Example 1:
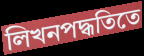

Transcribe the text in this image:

লিখনপদ্ধতিতে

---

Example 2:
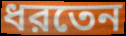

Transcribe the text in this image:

ধরতেন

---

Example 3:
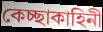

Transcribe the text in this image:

কেচ্ছাকাহিনী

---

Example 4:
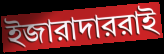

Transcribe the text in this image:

ইজারাদাররাই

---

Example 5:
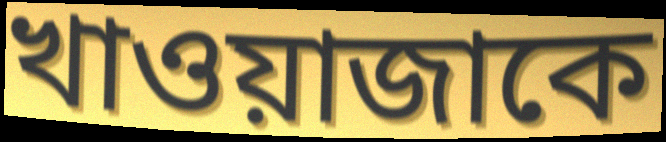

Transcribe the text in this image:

খাওয়াজাকে